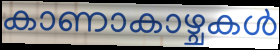
കാണാകാഴ്ചകൾ